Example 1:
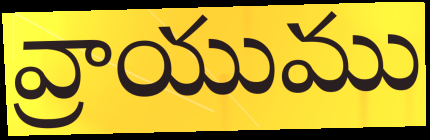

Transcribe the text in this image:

వ్రాయుము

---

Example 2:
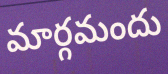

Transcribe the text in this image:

మార్గమందు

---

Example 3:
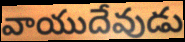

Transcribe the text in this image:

వాయుదేవుడు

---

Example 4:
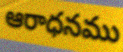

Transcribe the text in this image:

ఆరాధనము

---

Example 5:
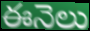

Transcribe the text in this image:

ఈనెలు